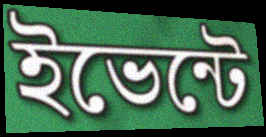
ইভেন্টে